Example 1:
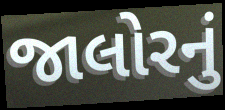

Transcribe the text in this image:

જાલોરનું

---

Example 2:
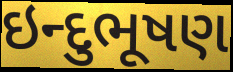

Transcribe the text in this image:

ઇન્દુભૂષણ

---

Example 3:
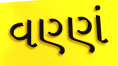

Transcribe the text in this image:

વણ્ણં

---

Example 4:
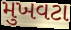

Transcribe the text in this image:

મુખવટા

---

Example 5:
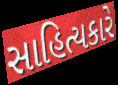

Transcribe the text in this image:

સાહિત્યકારે